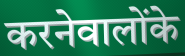
करनेवालोंके